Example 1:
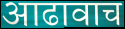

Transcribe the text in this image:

आढावाच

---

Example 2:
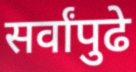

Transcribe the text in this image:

सर्वांपुढे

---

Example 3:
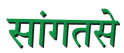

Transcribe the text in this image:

सांगतसे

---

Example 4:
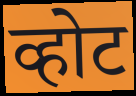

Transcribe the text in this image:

व्होट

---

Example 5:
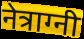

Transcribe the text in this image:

नेत्राग्नी